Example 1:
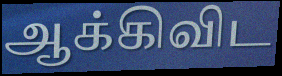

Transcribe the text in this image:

ஆக்கிவிட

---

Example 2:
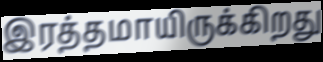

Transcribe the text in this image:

இரத்தமாயிருக்கிறது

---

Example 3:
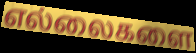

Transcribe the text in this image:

எல்லைகளை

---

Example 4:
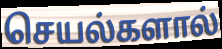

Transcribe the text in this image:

செயல்களால்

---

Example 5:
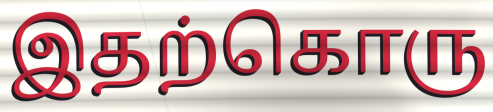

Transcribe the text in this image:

இதற்கொரு